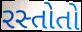
રસ્તોતો